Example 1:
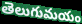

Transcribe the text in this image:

తెలుగుమయం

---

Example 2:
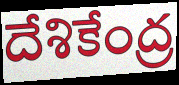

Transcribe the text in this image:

దేశికేంద్ర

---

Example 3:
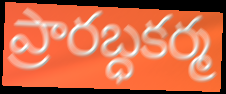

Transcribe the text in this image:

ప్రారబ్ధకర్మ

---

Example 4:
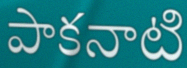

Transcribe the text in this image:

పాకనాటి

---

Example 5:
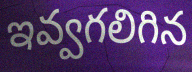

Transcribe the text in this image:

ఇవ్వగలిగిన